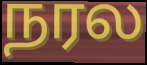
நரல